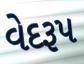
વેદરૂપ